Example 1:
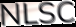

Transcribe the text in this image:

NLSC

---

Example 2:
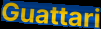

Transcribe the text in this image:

Guattari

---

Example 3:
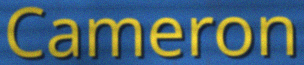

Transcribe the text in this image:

Cameron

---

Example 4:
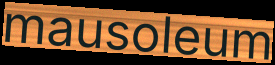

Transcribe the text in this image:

mausoleum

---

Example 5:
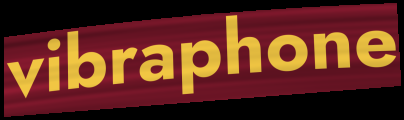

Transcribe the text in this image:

vibraphone